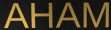
AHAM